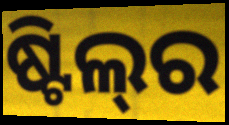
ଷ୍ଟିଲ୍‌ର